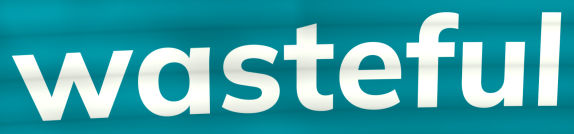
wasteful